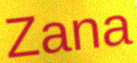
Zana